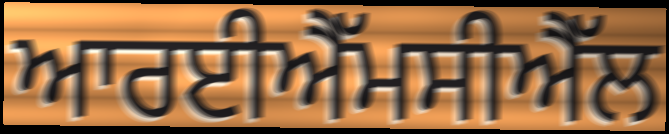
ਆਰਈਐੱਮਸੀਐੱਲ